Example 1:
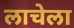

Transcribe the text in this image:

लाचेला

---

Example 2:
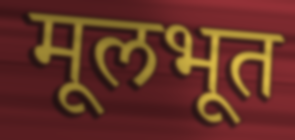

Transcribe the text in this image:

मूलभूत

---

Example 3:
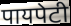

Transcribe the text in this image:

पायपेटी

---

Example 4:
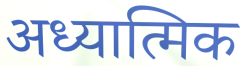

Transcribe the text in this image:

अध्यात्मिक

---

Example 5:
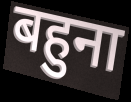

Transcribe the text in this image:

बहुना